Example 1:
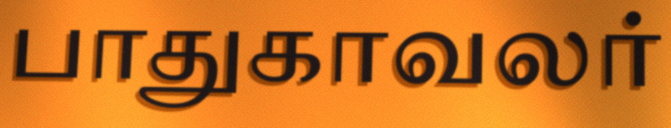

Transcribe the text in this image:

பாதுகாவலர்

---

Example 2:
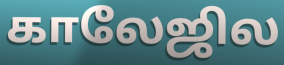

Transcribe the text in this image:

காலேஜில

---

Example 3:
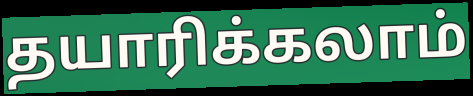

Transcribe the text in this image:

தயாரிக்கலாம்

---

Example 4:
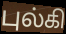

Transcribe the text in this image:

புல்கி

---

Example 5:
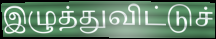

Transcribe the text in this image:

இழுத்துவிட்டுச்